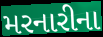
મરનારીના